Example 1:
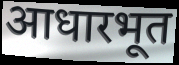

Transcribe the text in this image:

आधारभूत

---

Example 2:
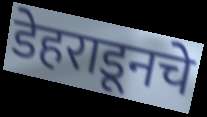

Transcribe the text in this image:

डेहराडूनचे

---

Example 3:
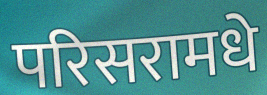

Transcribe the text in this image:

परिसरामधे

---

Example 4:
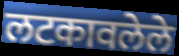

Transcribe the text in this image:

लटकावलेले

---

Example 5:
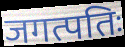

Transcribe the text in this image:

जगत्पतिः